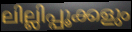
ലില്ലിപ്പൂക്കളും